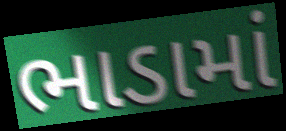
ભાડામાં